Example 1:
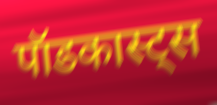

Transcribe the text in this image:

पॉडकास्ट्स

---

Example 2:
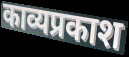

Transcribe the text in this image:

काव्यप्रकाश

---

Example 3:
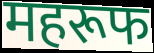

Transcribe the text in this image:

महरूफ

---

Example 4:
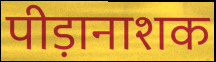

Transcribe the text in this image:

पीड़ानाशक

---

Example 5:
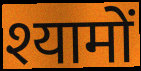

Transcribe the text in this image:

श्यामों